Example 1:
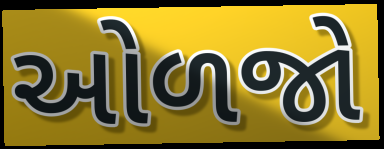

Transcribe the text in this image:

ઓળજો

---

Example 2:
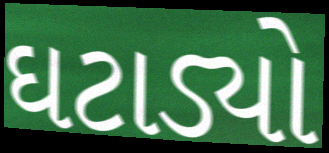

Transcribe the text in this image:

ઘટાડ્યો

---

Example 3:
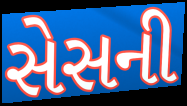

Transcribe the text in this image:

સેસની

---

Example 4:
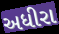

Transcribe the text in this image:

અધીરા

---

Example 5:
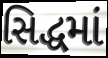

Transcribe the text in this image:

સિદ્ધમાં